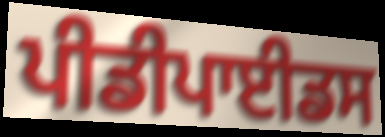
ਪੀਡੀਪਾਈਡਸ